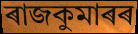
ৰাজকুমাৰৰ